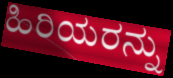
ಹಿರಿಯರನ್ನು